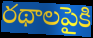
రథాలపైకి